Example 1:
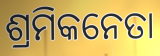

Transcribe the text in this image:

ଶ୍ରମିକନେତା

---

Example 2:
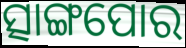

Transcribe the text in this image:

ତ୍ସାଙ୍ଗପୋର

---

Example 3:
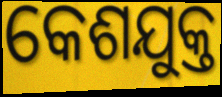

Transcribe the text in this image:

କେଶଯୁକ୍ତ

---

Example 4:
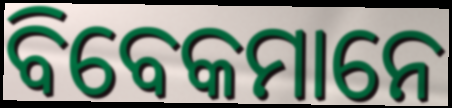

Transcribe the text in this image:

ବିବେକମାନେ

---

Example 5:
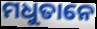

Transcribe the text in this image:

ମଧୁତାନେ